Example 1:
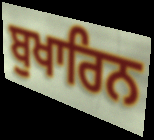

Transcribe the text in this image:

ਬੁਖਾਰਿਨ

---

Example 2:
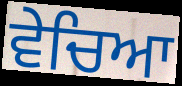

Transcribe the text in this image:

ਵੇਚਿਆ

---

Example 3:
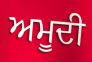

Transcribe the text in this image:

ਅਮੂਦੀ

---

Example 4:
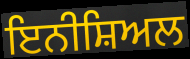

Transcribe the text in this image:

ਇਨੀਸ਼ਿਅਲ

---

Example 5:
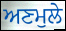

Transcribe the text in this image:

ਅਣਮੁਲੇ